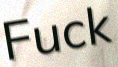
Fuck